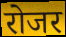
रोजर